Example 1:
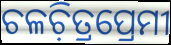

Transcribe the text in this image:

ଚଳଚ଼ିତ୍ରପ୍ରେମୀ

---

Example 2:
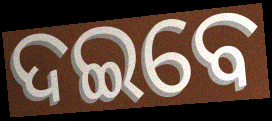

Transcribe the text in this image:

ଦଇବେ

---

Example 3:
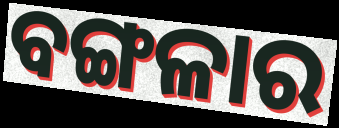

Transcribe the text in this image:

ବଙ୍ଗଳାର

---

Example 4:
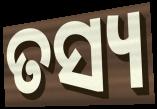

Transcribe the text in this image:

ତସ୍ୟ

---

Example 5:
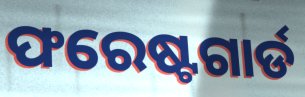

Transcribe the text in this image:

ଫରେଷ୍ଟଗାର୍ଡ